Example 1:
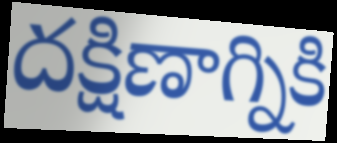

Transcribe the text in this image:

దక్షిణాగ్నికి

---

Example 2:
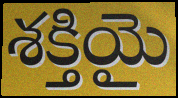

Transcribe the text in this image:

శక్తియై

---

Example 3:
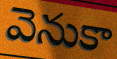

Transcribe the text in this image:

వెనుకా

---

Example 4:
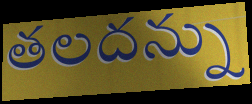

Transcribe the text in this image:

తలదన్ను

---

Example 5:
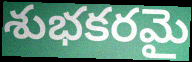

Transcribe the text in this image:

శుభకరమై